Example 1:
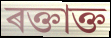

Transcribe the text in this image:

ৰক্তাক্ত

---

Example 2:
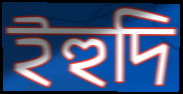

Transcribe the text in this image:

ইহুদি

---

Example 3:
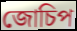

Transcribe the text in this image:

জোচিপ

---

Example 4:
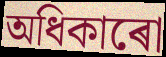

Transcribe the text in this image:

অধিকাৰো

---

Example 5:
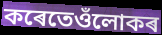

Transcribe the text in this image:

কৰেতেওঁলোকৰ